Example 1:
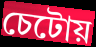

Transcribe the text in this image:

চেটোয়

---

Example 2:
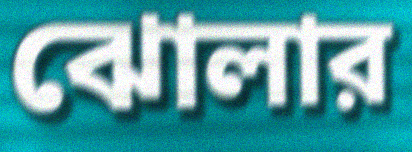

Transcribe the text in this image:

ঝোলার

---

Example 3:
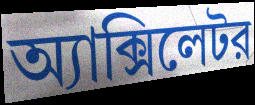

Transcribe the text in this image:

অ্যাক্সিলেটর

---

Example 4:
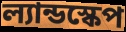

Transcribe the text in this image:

ল্যান্ডস্কেপ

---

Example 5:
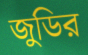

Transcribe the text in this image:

জুডির